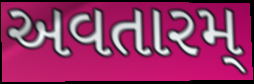
અવતારમ્